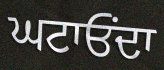
ਘਟਾਓਂਦਾ